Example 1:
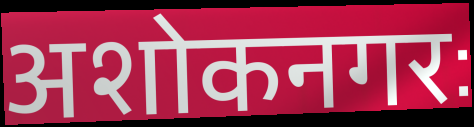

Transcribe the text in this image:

अशोकनगरः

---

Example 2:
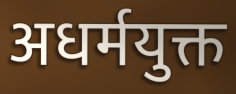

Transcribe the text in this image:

अधर्मयुक्त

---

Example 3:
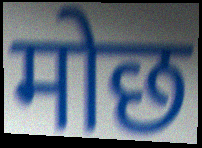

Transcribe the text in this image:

मोछ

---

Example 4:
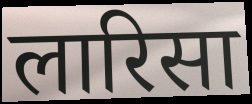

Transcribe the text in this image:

लारिसा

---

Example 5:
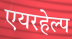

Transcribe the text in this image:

एयरहेल्प